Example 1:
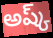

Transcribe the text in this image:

అష్క్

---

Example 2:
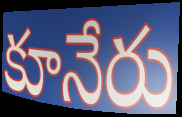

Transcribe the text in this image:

కూనేరు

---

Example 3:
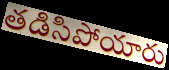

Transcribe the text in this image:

తడిసిపోయారు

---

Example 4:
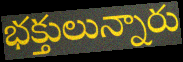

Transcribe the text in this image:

భక్తులున్నారు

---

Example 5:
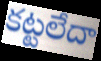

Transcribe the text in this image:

కట్టలేదా